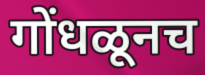
गोंधळूनच